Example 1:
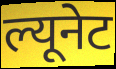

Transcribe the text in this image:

ल्यूनेट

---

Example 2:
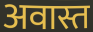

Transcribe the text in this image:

अवास्त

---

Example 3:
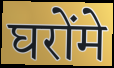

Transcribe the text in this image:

घरोंमे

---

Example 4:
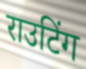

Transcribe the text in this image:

राउटिंग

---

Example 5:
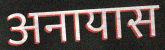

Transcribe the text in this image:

अनायास